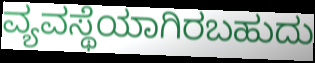
ವ್ಯವಸ್ಥೆಯಾಗಿರಬಹುದು